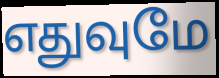
எதுவுமே